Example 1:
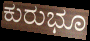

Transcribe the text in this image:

ಕುರುಭೂ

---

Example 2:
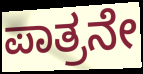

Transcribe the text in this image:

ಪಾತ್ರನೇ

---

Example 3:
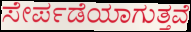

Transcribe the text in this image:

ಸೇರ್ಪಡೆಯಾಗುತ್ತವೆ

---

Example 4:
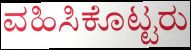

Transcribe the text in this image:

ವಹಿಸಿಕೊಟ್ಟರು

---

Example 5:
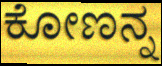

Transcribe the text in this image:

ಕೋಣನ್ನ